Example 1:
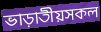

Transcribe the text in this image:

ভাড়াতীয়সকল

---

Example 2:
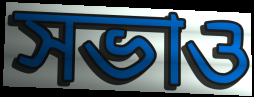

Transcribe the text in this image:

সভাও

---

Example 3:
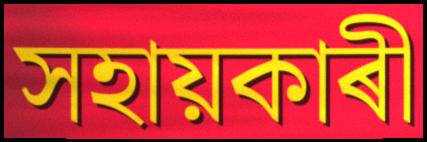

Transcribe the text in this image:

সহায়কাৰী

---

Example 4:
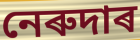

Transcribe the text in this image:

নেৰুদাৰ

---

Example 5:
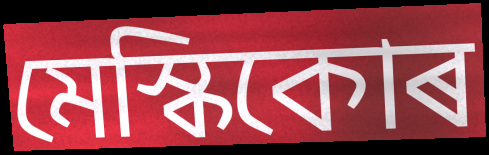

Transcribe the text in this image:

মেস্কিকোৰ